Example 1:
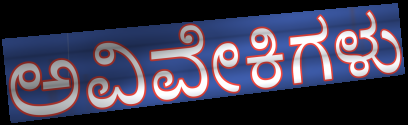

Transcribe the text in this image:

ಅವಿವೇಕಿಗಳು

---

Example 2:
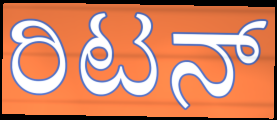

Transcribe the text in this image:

ರಿಟನ್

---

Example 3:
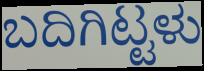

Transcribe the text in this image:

ಬದಿಗಿಟ್ಟಳು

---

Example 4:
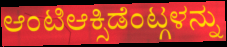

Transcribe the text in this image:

ಆಂಟಿಆಕ್ಸಿಡೆಂಟ್ಗಳನ್ನು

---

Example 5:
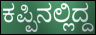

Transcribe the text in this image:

ಕಪ್ಪಿನಲ್ಲಿದ್ದ